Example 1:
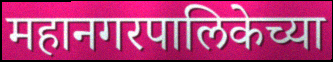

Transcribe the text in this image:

महानगरपालिकेच्या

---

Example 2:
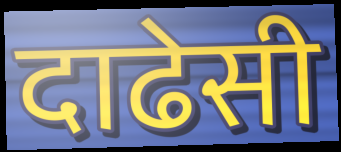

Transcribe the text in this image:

दाढेसी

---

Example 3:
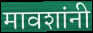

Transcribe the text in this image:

मावशांनी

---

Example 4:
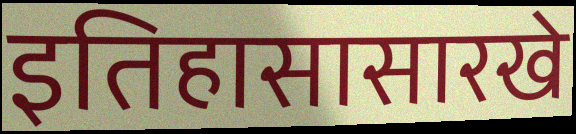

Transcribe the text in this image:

इतिहासासारखे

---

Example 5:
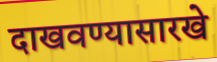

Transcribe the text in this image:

दाखवण्यासारखे